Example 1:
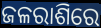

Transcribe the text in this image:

ଜଳରାଶିରେ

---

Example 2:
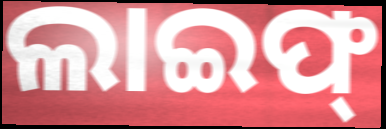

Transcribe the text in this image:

ଲାଇଫ୍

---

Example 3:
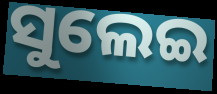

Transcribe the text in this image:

ସୁଲେଇ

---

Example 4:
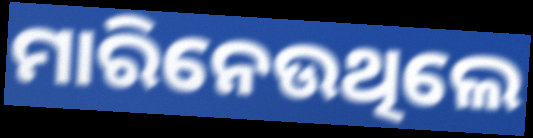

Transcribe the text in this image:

ମାରିନେଉଥିଲେ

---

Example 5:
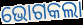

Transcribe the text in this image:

ଭୋଗକଲା